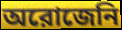
অরোজেনি